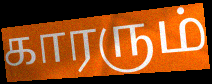
காரரும்